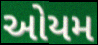
ઓયમ